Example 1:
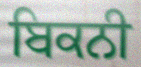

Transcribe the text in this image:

ਬਿਕਨੀ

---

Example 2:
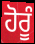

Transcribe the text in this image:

ਹੋਰੂੰ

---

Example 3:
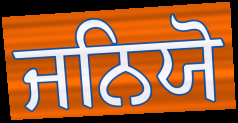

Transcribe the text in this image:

ਜਨਿਯੋ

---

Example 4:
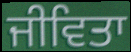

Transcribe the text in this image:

ਜੀਵਿਤਾ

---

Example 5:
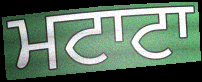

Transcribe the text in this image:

ਮਟਾਟਾ